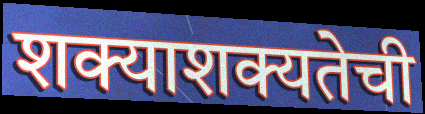
शक्याशक्यतेची